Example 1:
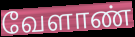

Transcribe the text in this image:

வேளாண்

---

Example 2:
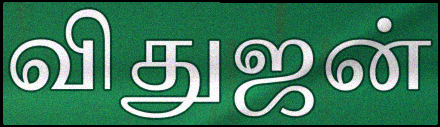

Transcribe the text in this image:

விதுஜன்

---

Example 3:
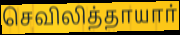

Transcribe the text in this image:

செவிலித்தாயார்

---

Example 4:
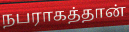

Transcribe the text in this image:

நபராகத்தான்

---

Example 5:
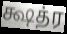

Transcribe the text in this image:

க்ஷத்ர